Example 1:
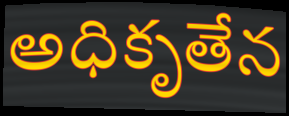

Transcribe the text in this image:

అధికృతేన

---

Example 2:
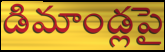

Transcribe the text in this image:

డిమాండ్లపై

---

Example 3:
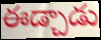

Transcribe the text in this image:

ఈడ్చాడు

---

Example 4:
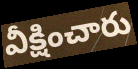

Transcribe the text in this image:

వీక్షించారు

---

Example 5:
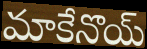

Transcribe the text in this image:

మాకేనొయ్